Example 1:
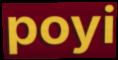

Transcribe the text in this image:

poyi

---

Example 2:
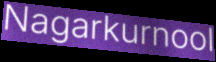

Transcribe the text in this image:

Nagarkurnool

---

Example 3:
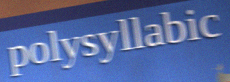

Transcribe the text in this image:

polysyllabic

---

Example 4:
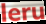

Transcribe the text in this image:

leru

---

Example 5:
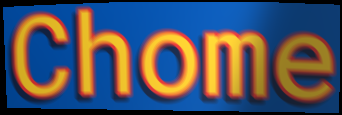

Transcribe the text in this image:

Chome